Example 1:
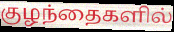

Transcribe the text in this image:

குழந்தைகளில்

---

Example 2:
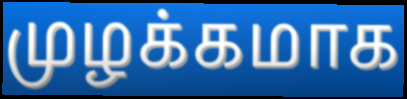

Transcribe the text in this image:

முழக்கமாக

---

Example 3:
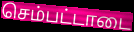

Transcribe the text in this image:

செம்பட்டாடை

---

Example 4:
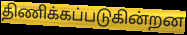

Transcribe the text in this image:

திணிக்கப்படுகின்றன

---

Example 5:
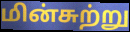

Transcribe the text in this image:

மின்சுற்று